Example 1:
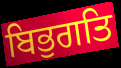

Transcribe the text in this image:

ਬਿਭੁਗਤਿ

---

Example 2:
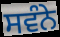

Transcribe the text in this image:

ਸਵੰਨੇ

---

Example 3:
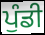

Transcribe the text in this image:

ਪੁੰਡੀ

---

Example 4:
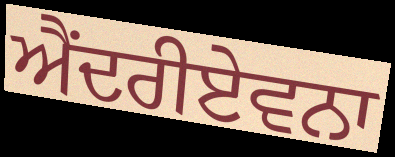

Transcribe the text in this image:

ਐਂਦਰੀਏਵਨਾ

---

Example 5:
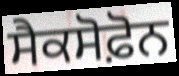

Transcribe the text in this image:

ਸੈਕਸੋਫ਼ੋਨ